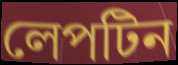
লেপটিন